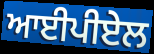
ਆਈਪੀਏਲ